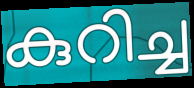
കുറിച്ച